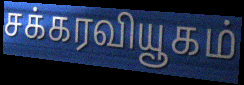
சக்கரவியூகம்